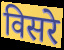
विसरे